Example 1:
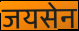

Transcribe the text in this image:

जयसेन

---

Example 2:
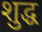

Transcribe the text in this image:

शुद्ध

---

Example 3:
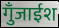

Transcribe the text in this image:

गुँजाईश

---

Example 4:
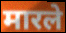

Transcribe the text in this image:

मारले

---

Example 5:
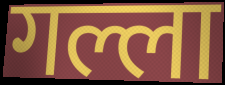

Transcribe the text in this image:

गल्ला